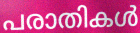
പരാതികൾ